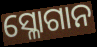
ସ୍ଳୋଗାନ